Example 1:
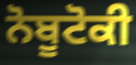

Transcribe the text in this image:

ਨੋਬੂਟੋਕੀ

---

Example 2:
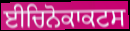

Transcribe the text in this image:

ਈਚਿਨੋਕਾਕਟਸ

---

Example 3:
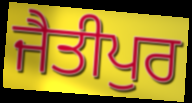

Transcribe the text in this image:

ਜੈਤੀਪੁਰ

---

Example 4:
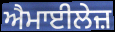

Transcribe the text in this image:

ਐਮਾਈਲੇਜ਼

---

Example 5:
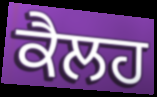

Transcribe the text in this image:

ਕੈਲਹ